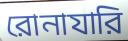
রোনাযারি